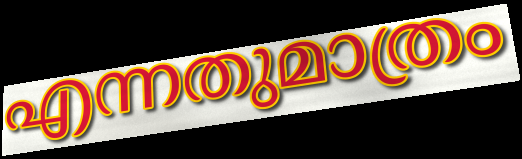
എന്നതുമാത്രം